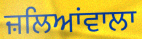
ਜ਼ਲਿਆਂਵਾਲਾ